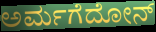
ಅರ್ಮಗೆದೋನ್